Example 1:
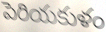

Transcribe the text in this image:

పెరియకుళం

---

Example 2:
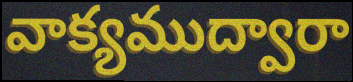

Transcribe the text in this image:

వాక్యముద్వారా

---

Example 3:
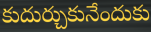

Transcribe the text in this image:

కుదుర్చుకునేందుకు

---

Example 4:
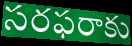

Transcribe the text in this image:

సరఫరాకు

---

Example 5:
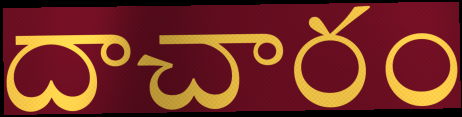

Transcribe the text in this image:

దాచారం